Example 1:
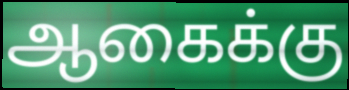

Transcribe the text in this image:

ஆகைக்கு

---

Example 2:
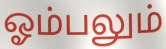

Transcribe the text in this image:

ஓம்பலும்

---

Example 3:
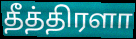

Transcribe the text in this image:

தீத்திரளா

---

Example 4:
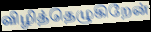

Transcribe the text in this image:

விழித்தெழுகிறேன்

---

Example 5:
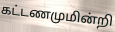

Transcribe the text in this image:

கட்டணமுமின்றி